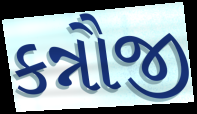
કન્નૌજી